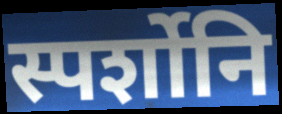
स्पर्शोनि